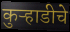
कुऱ्हाडीचे